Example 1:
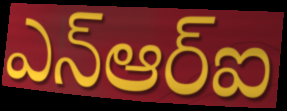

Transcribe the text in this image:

ఎన్ఆర్ఐ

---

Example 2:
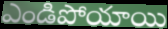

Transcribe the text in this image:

ఎండిపోయాయి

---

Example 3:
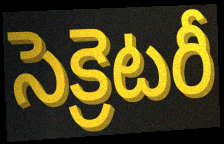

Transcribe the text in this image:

సెక్రెటరీ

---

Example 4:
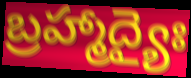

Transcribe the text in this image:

బ్రహ్మాద్యైః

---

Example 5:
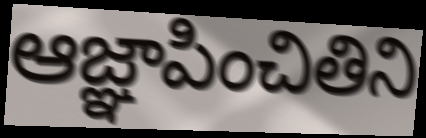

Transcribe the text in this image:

ఆజ్ఞాపించితిని